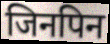
जिनपिन